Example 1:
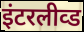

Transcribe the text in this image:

इंटरलीव्ड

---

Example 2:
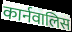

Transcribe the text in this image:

कार्नवालिस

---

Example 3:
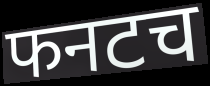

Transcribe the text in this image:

फनटच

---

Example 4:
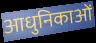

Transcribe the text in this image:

आधुनिकाओं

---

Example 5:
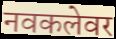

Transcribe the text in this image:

नवकलेवर